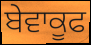
ਬੇਵਾਕੂਫ